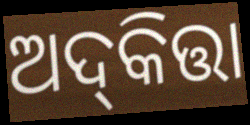
ଅଦ୍‌କିତ୍ତା